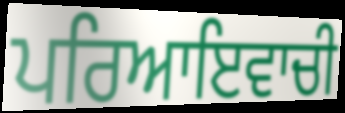
ਪਰਿਆਇਵਾਚੀ